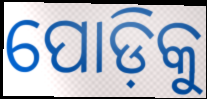
ପୋଡ଼ିକୁ